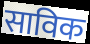
साविक